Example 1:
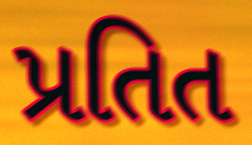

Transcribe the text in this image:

પ્રતિત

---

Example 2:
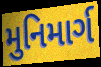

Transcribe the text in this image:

મુનિમાર્ગ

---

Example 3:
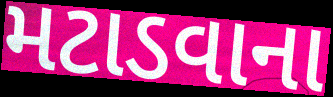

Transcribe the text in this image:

મટાડવાના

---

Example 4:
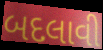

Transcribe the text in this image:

બદલાવી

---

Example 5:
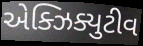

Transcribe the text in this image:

એક્ઝિક્યુટીવ